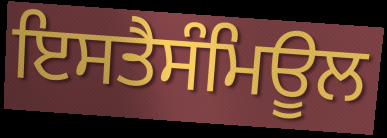
ਇਸਤੈਸੰਮਿਊਲ